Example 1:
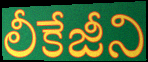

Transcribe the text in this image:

లీకేజీని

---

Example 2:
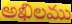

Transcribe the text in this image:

అఖిలము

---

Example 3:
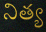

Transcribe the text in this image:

నిత్య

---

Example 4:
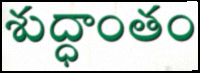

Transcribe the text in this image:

శుద్ధాంతం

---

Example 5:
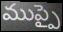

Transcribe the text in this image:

ముప్పై